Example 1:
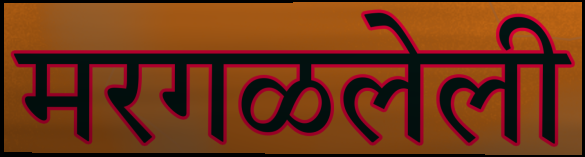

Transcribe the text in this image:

मरगळलेली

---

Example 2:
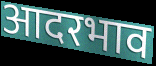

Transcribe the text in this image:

आदरभाव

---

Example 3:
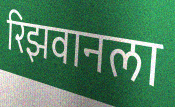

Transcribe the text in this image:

रिझवानला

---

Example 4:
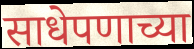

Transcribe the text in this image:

साधेपणाच्या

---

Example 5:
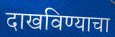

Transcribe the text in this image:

दाखविण्याचा